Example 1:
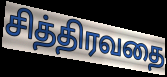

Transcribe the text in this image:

சித்திரவதை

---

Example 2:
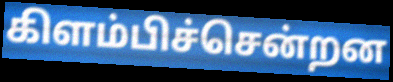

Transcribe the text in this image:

கிளம்பிச்சென்றன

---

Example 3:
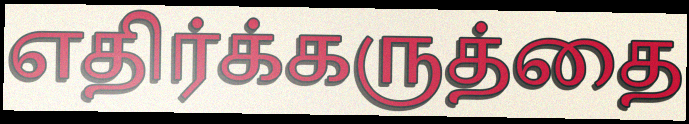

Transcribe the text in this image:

எதிர்க்கருத்தை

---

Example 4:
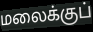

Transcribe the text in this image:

மலைக்குப்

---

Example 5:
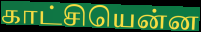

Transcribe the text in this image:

காட்சியென்ன